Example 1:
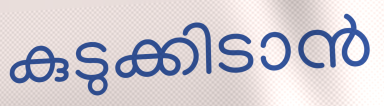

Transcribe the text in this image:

കുടുക്കിടാൻ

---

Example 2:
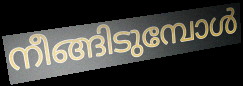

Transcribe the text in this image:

നീങ്ങിടുമ്പോൾ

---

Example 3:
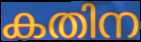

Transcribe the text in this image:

കതിന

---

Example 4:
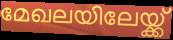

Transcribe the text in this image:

മേഖലയിലേയ്ക്ക്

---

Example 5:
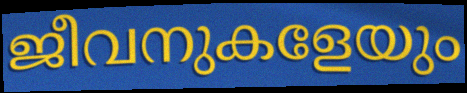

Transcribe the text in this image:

ജീവനുകളേയും